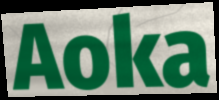
Aoka